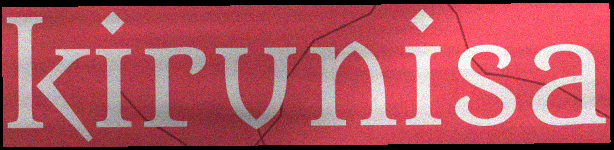
kirunisa